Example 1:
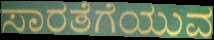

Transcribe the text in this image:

ಸಾರತೆಗೆಯುವ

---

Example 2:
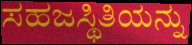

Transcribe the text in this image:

ಸಹಜಸ್ಥಿತಿಯನ್ನು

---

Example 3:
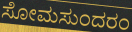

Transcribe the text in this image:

ಸೋಮಸುಂದರಂ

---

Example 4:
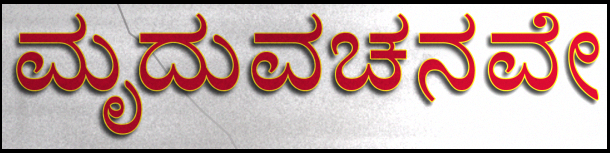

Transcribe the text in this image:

ಮೃದುವಚನವೇ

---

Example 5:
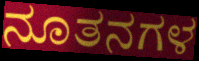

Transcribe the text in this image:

ನೂತನಗಳ